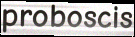
proboscis